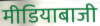
मीडियाबाजी